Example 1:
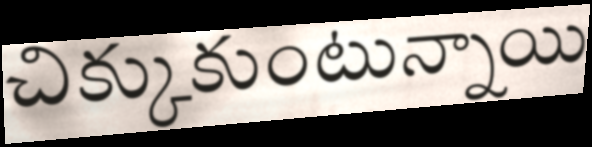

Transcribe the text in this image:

చిక్కుకుంటున్నాయి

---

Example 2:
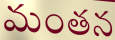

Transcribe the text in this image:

మంతన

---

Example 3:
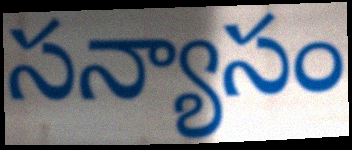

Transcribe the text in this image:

సన్యాసం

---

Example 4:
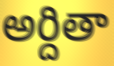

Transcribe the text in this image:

అర్దితా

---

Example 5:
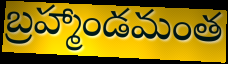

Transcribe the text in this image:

బ్రహ్మాండమంత